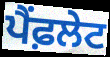
ਪੈਂਫ਼ਲੇਟ